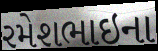
રમેશભાઇના